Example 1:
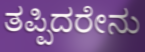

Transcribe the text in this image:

ತಪ್ಪಿದರೇನು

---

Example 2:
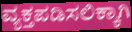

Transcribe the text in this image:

ವ್ಯಕ್ತಪಡಿಸಲಿಕ್ಕಾಗಿ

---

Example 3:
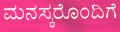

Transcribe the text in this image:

ಮನಸ್ಕರೊಂದಿಗೆ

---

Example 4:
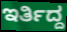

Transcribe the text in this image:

ಇರ್ತಿದ್ದ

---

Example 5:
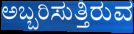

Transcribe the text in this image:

ಅಬ್ಬರಿಸುತ್ತಿರುವ